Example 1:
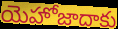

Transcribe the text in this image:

యెహోజాదాకు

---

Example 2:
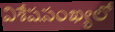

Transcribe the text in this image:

విశేషసంఖ్యలో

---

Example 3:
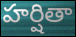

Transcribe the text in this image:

హర్షితా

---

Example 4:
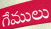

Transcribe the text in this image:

గేములు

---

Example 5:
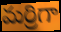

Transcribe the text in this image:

మర్రిగా